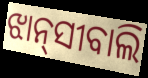
ଝାନ୍‌ସୀବାଲି